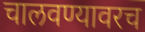
चालवण्यावरच